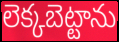
లెక్కబెట్టాను